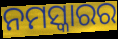
ନମସ୍କାରର